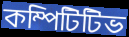
কম্পিটিটিভ